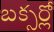
బక్సర్లో